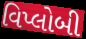
વિપ્લોબી